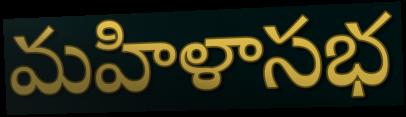
మహిళాసభ